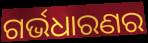
ଗର୍ଭଧାରଣର